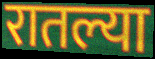
रातल्या